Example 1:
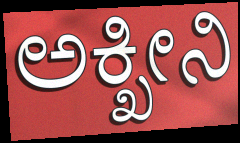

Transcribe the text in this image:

ಅಕ್ಖೀನಿ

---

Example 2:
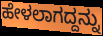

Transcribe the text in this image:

ಹೇಳಲಾಗದ್ದನ್ನು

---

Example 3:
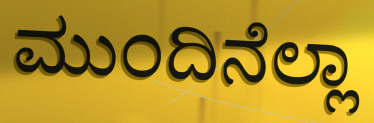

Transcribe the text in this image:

ಮುಂದಿನೆಲ್ಲಾ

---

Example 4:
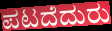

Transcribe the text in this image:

ಪಟದೆದುರು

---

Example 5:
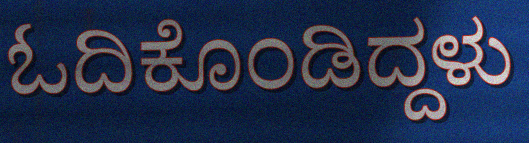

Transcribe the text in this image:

ಓದಿಕೊಂಡಿದ್ದಳು